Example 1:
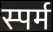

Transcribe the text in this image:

स्पर्म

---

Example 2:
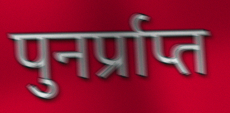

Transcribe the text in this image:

पुनर्प्राप्त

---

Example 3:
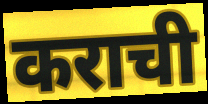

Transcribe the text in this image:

कराची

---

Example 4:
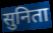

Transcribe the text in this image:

सुनिता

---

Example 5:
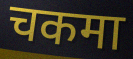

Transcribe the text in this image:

चकमा